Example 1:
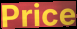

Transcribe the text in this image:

Price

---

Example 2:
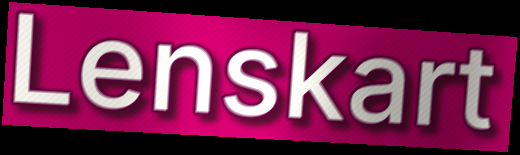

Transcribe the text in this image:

Lenskart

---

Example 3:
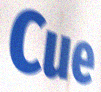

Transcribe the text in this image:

Cue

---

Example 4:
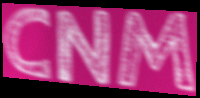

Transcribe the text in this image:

CNM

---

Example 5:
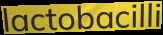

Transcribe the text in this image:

lactobacilli